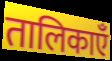
तालिकाएँ